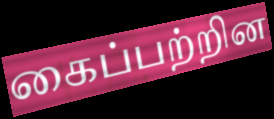
கைப்பற்றின